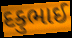
દકુભાઈ